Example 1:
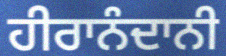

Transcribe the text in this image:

ਹੀਰਾਨੰਦਾਨੀ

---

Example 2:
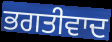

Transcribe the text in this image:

ਭਗਤੀਵਾਦ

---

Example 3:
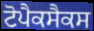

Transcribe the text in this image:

ਟੋਪੈਕਸੈਕਸ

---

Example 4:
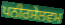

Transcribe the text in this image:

ਪਨੀਰਸੇਲਵਮ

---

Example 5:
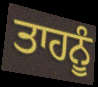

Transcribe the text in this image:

ਤਾਹਨੂੰ